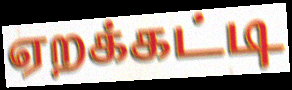
ஏறக்கட்டி